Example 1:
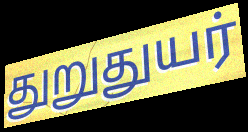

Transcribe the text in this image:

துறுதுயர்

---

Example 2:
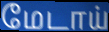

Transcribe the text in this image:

மேடாய்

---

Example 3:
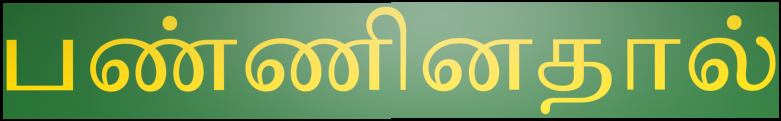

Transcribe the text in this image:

பண்ணினதால்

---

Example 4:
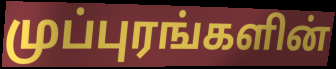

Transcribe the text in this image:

முப்புரங்களின்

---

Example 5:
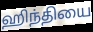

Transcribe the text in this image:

ஹிந்தியை